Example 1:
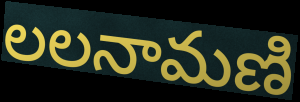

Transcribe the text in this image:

లలనామణి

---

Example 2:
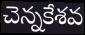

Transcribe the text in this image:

చెన్నకేశవ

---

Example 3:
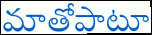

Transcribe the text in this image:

మాతోపాటూ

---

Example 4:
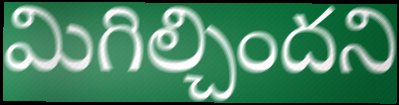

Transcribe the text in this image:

మిగిల్చిందని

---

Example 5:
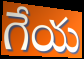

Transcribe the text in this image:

గేయ